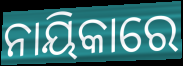
ନାୟିକାରେ